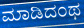
ಮಾಡಿದಂಥ